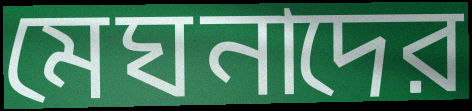
মেঘনাদের